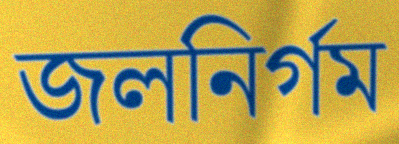
জলনির্গম